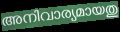
അനിവാര്യമായതു